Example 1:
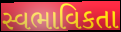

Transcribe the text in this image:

સ્વભાવિકતા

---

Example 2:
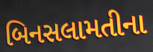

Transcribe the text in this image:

બિનસલામતીના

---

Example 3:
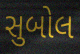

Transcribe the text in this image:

સુબોલ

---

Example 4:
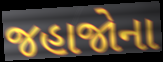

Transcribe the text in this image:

જહાજોના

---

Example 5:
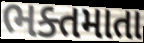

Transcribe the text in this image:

ભક્તમાતા